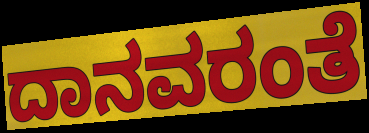
ದಾನವರಂತೆ